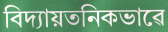
বিদ্য়ায়তনিকভাৱে